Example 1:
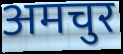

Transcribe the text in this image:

अमचुर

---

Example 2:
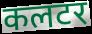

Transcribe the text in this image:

कलटर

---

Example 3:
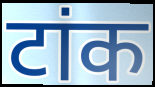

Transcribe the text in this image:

टांक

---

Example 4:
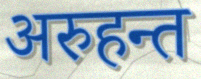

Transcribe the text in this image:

अरुहन्त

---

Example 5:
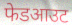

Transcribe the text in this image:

फेडआउट